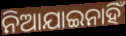
ନିଆଯାଇନାହିଁ